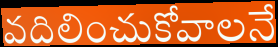
వదిలించుకోవాలనే